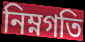
নিম্নগতি